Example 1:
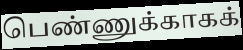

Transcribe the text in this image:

பெண்ணுக்காகக்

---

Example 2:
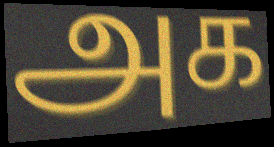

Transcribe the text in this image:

அக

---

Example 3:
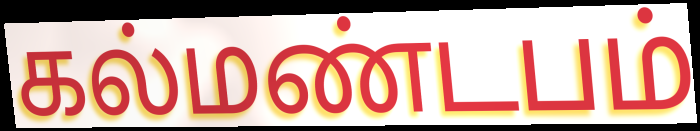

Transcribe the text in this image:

கல்மண்டபம்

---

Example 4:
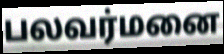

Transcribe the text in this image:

பலவர்மனை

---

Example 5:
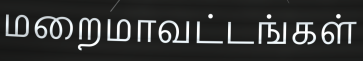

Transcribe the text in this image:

மறைமாவட்டங்கள்